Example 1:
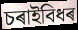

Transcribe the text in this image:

চৰাইবিধৰ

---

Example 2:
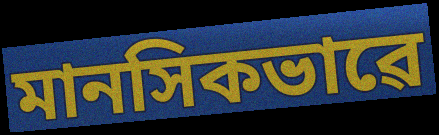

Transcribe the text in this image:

মানসিকভাৱে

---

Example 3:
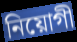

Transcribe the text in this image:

নিয়োগী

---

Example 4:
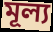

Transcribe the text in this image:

মূল্য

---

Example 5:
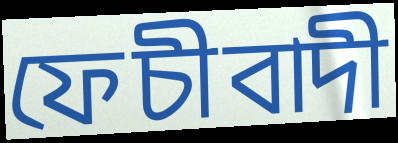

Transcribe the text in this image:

ফেচীবাদী